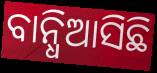
ବାନ୍ଧିଆସିଛି